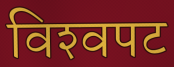
विश्वपट